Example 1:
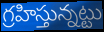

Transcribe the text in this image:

గ్రహిస్తున్నట్టు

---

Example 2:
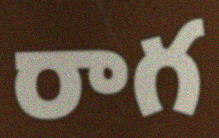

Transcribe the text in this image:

రాగ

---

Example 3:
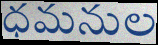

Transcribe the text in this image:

ధమనుల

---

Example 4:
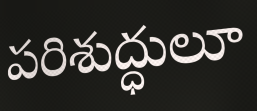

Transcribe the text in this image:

పరిశుద్ధులూ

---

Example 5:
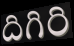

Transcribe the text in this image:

దిగిరి